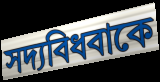
সদ্যবিধবাকে